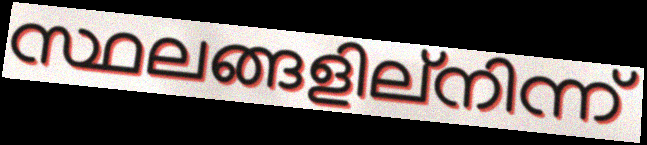
സ്ഥലങ്ങളില്നിന്ന്